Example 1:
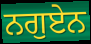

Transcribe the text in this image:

ਨਗੁਏਨ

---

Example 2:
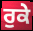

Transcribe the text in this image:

ਰੁਕੇ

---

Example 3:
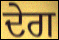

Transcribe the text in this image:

ਦੇਗ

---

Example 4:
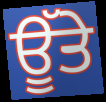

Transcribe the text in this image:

ਊੱਤੇ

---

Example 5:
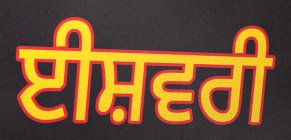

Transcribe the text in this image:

ਈਸ਼ਵਰੀ